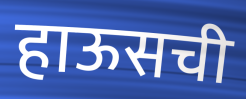
हाऊसची